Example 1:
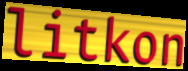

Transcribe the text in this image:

litkon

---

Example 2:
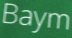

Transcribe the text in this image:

Baym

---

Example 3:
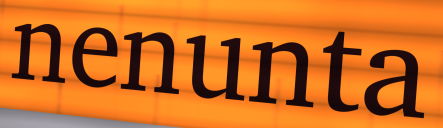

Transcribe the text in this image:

nenunta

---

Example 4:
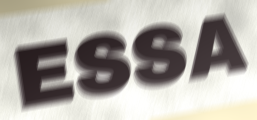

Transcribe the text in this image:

ESSA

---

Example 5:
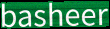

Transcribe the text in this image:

basheer